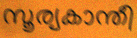
സൂര്യകാന്തീ